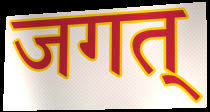
जगत्